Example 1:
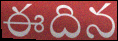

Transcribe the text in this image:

ఈదిన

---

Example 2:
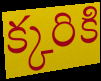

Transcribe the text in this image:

క్కరికి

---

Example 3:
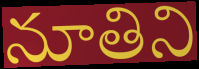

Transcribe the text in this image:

నూతిని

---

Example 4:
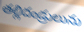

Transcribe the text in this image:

తల్లిదండ్రులును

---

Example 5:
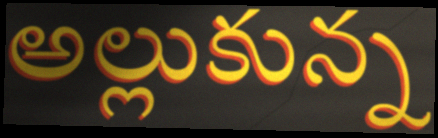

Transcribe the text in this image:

అల్లుకున్న